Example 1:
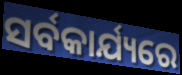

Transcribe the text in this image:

ସର୍ବକାର୍ଯ୍ୟରେ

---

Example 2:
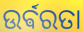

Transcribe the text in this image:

ଉର୍ଵରତା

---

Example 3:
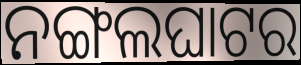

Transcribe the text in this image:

ନଙ୍ଗଲଘାଟର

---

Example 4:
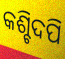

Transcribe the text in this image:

କଶ୍ଚିଦପି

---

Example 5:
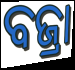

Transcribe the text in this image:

ବଜ୍ରା